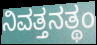
ನಿವತ್ತನತ್ಥಂ